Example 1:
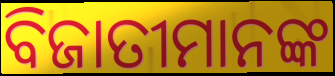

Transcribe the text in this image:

ବିଜାତୀମାନଙ୍କ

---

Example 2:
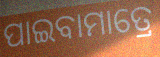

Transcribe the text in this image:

ପାଇବାମାତ୍ରେ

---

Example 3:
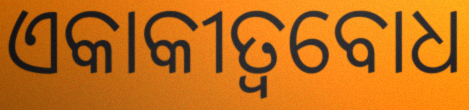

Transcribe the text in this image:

ଏକାକୀତ୍ୱବୋଧ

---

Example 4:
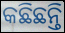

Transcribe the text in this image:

କଛିଛନ୍ତି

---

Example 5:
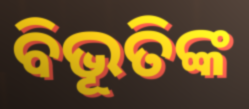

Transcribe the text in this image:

ବିଭୂତିଙ୍କ